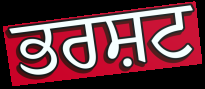
ਭਰਸ਼ਟ